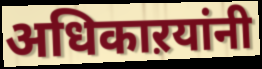
अधिकाऱयांनी